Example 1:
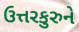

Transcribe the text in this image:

ઉત્તરકુરુને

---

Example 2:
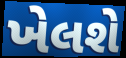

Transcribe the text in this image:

ખેલશે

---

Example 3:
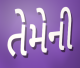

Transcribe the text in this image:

તેમેની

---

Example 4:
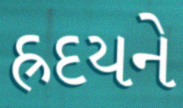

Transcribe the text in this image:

હ્રદયને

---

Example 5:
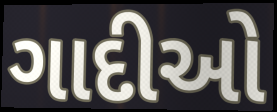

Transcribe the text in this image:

ગાદીઓ